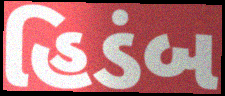
હિડંબ